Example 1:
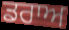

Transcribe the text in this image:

ਡਰਾਅ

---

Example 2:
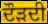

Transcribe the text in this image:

ਦੌੜਦੀ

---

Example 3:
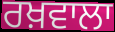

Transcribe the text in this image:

ਰਖ਼ਵਾਲਾ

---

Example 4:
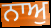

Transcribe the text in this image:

ਨਾਅੁ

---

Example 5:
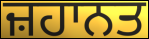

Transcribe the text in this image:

ਜ਼ਹਾਨਤ